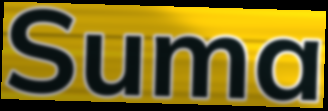
Suma